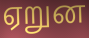
ஏறுன